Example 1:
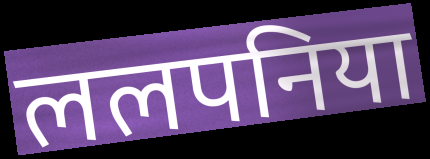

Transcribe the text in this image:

ललपनिया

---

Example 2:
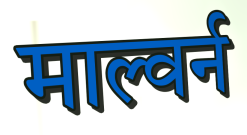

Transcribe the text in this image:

माल्वर्न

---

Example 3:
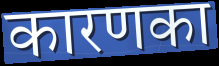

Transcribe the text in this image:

कारणका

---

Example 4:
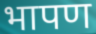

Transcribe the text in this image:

भापण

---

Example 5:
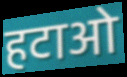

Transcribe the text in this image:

हटाओ